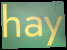
hay